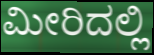
ಮೀರಿದಲ್ಲಿ